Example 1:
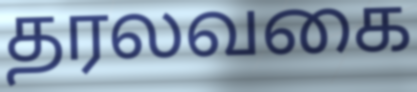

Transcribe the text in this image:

தரலவகை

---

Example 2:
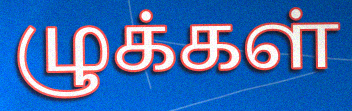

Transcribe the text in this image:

ழுக்கள்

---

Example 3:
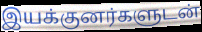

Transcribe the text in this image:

இயக்குனர்களுடன்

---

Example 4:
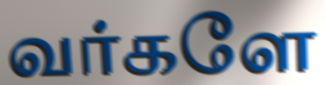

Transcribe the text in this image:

வர்களே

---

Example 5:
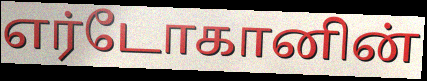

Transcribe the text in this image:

எர்டோகானின்